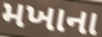
મખાના